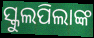
ସ୍କୁଲପିଲାଙ୍କ